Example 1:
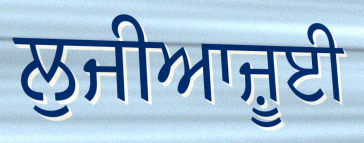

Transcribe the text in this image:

ਲੁਜੀਆਜ਼ੂਈ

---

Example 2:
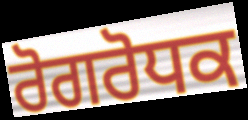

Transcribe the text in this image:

ਰੋਗਰੋਧਕ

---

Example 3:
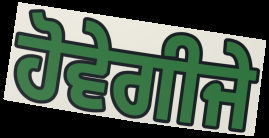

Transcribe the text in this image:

ਹੋਵੇਗੀਜੇ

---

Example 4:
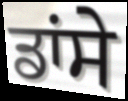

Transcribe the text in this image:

ਡਾਂਸੇ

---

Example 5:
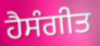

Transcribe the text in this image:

ਹੈਸੰਗੀਤ